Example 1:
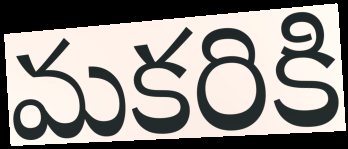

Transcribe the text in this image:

మకరికి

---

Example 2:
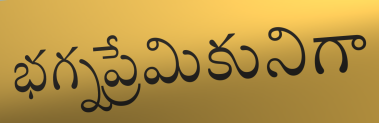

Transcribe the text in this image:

భగ్నప్రేమికునిగా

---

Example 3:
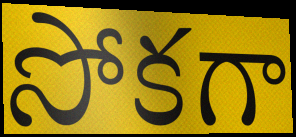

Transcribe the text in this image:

సోకగా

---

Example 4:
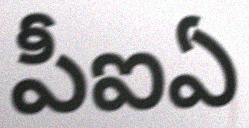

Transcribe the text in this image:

పీఐఏ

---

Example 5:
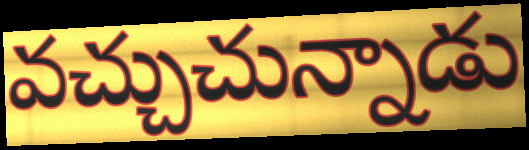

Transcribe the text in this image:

వచ్చుచున్నాడు